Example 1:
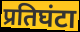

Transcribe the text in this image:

प्रतिघंटा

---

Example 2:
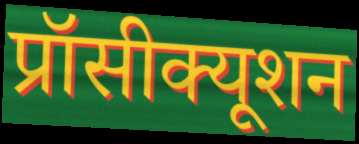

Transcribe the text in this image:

प्रॉसीक्यूशन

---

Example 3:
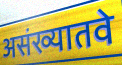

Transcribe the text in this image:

असंख्यातवे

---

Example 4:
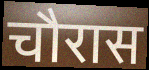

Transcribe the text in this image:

चौरास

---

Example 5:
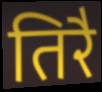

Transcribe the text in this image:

तिरै